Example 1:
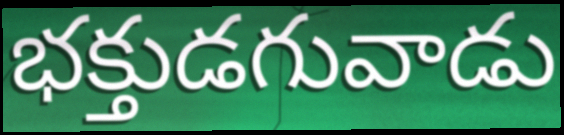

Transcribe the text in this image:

భక్తుడగువాడు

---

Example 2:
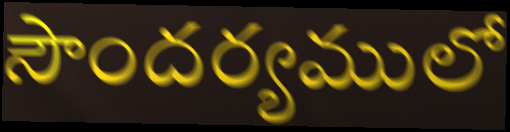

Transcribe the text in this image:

సౌందర్యములో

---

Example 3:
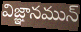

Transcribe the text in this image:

విజ్ఞానమున్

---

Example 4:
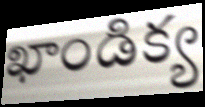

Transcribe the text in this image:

ఖాండిక్య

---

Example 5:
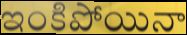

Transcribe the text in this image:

ఇంకిపోయినా